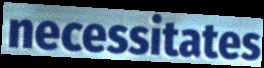
necessitates